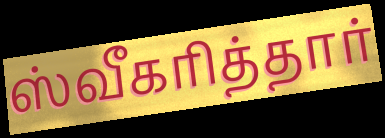
ஸ்வீகரித்தார்